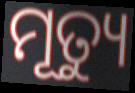
ମୂତ୍ୟୁ